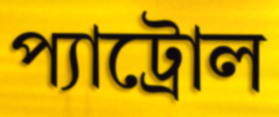
প্যাট্রোল